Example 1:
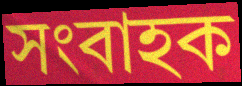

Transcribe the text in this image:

সংবাহক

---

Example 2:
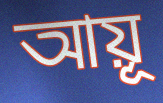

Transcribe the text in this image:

আয়ূ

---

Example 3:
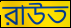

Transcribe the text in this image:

রাউত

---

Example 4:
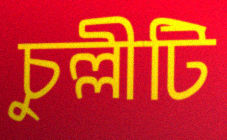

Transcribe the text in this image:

চুল্লীটি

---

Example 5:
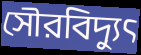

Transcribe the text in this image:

সৌরবিদ্যুৎ